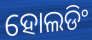
ହୋଲଡିଂ